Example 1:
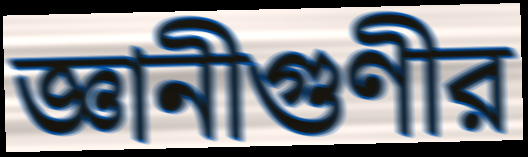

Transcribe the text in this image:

জ্ঞানীগুণীর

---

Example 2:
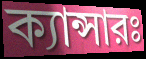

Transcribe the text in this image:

ক্যান্সারঃ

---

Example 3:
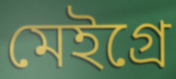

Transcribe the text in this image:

মেইগ্রে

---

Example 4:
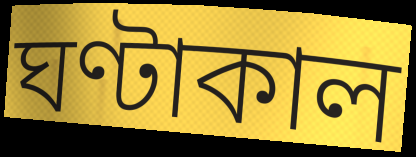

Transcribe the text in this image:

ঘণ্টাকাল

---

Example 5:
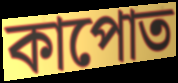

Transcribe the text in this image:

কাপোত